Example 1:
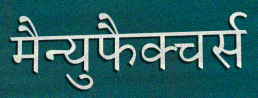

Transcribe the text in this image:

मैन्युफैक्चर्स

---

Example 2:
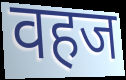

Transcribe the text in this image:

वहज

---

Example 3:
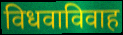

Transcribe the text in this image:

विधवाविवाह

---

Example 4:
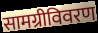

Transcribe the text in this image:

सामग्रीविवरण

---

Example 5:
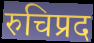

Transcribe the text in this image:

रुचिप्रद